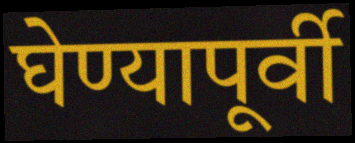
घेण्यापूर्वी